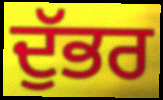
ਦੁੱਭਰ